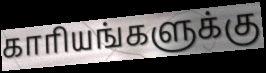
காரியங்களுக்கு